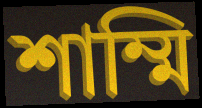
শাম্মি